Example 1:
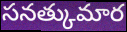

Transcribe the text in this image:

సనత్కుమార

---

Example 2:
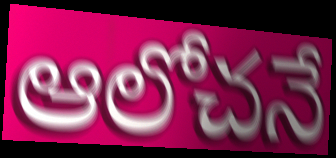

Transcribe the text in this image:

ఆలోచనే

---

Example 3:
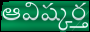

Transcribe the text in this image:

ఆవిష్కర్త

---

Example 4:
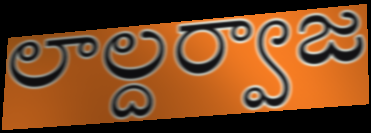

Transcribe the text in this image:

లాల్దర్వాజ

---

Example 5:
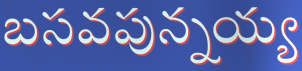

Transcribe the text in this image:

బసవపున్నయ్య